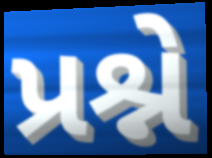
પ્રશ્ને